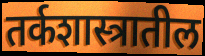
तर्कशास्त्रातील